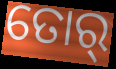
ତୋର୍